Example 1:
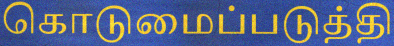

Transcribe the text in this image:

கொடுமைப்படுத்தி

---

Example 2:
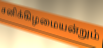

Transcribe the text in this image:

சனிக்கிழமையன்றும்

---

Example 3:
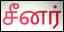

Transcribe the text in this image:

சீனர்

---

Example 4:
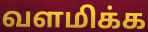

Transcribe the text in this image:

வளமிக்க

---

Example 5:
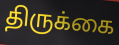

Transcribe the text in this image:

திருக்கை